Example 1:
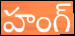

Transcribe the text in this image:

హంగ్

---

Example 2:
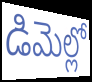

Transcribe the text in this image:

డిమెల్లో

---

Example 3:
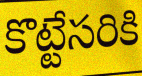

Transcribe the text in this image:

కొట్టేసరికి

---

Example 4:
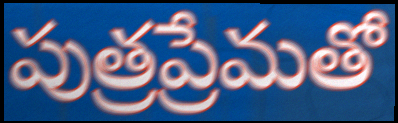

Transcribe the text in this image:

పుత్రప్రేమతో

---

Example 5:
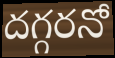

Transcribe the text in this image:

దగ్గరనో